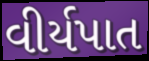
વીર્યપાત